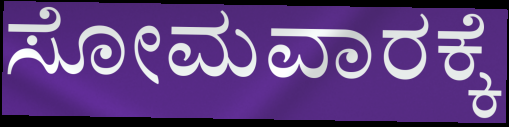
ಸೋಮವಾರಕ್ಕೆ